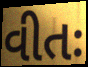
વીતઃ